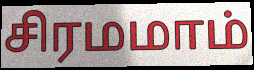
சிரமமாம்